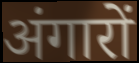
अंगारों